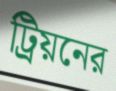
ট্রিয়নের